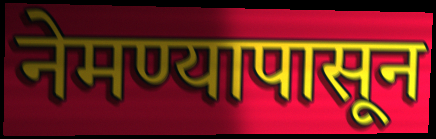
नेमण्यापासून